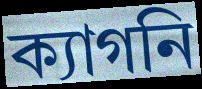
ক্যাগনি